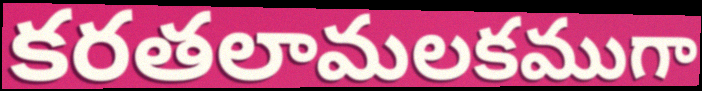
కరతలామలకముగా